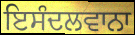
ਇਸੰਦਲਵਾਨਾ